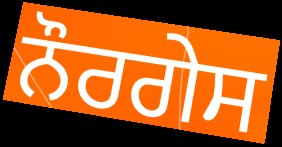
ਨੌਰਗੇਸ